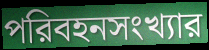
পরিবহনসংখ্যার